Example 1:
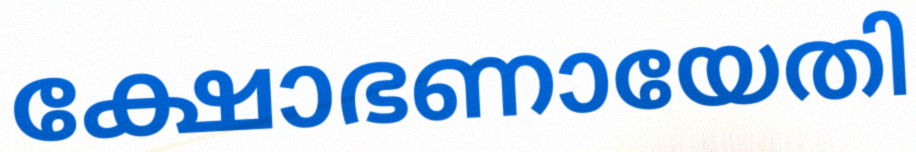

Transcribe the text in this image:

ക്ഷോഭണായേതി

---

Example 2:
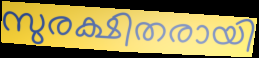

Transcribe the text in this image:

സുരക്ഷിതരായി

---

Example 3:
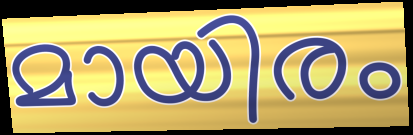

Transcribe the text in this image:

മായിരം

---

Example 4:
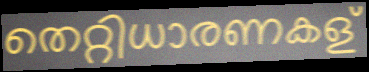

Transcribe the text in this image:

തെറ്റിധാരണകള്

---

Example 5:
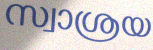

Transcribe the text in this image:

സ്വാശ്രയ